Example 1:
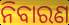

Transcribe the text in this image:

ନିବାରଣ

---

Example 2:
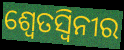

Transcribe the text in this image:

ଶ୍ୱେତସ୍ୱିନୀର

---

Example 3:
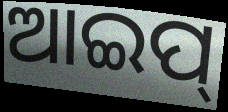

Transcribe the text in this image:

ଆଇପ୍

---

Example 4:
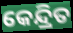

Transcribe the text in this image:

କେନ୍ଦ୍ରିତ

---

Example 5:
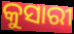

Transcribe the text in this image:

କୁସାରୀ